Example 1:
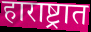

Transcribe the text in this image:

हाराष्ट्रात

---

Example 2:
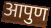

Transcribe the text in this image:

आपुण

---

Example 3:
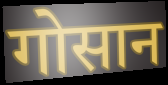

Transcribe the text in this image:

गोसान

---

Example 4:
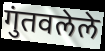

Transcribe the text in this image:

गुंतवलेले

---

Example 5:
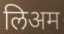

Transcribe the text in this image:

लिअम